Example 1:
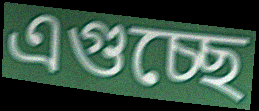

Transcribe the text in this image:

এগুচ্ছে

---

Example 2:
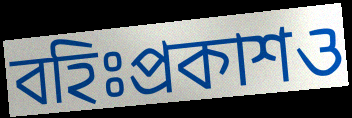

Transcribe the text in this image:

বহিঃপ্রকাশও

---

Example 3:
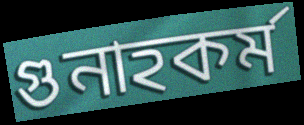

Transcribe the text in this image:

গুনাহকর্ম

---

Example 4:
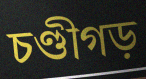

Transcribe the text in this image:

চণ্ডীগড়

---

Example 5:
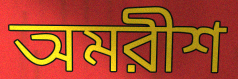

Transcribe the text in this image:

অমরীশ